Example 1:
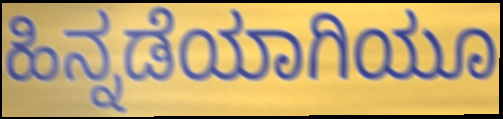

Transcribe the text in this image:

ಹಿನ್ನಡೆಯಾಗಿಯೂ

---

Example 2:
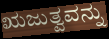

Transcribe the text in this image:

ಋಜುತ್ವವನ್ನು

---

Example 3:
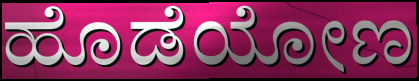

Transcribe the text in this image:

ಹೊಡೆಯೋಣ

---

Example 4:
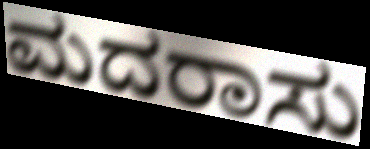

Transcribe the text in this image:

ಮದರಾಸು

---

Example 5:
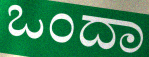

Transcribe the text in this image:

ಒಂದಾ